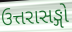
ઉત્તરાસઙ્ગો